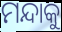
ମନ୍ଦାକୁ